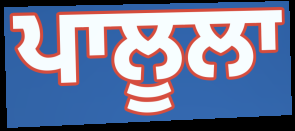
ਪਾਲੂਲਾ